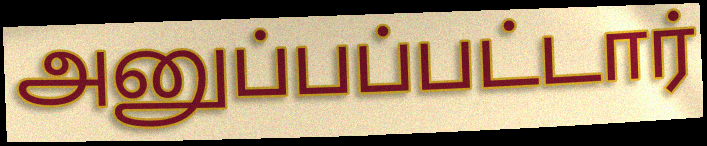
அனுப்பப்பட்டார்